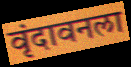
वृंदावनला